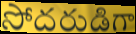
సోదరుడిగా